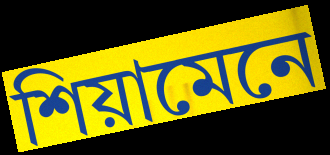
শিয়ামেনে